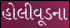
હોલીવૂડના